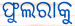
ଫୁଲରାକୁ